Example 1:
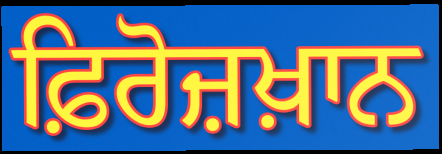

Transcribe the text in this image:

ਫ਼ਿਰੋਜ਼ਖ਼ਾਨ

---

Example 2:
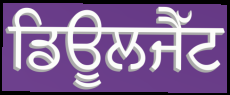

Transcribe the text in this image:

ਡਿਊਲਜੈੱਟ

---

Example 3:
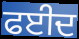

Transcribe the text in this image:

ਫਈਦ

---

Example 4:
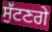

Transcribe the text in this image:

ਸੁੱਟਣਗੇ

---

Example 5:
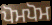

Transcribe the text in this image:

ਪੋਮਪੋਮ